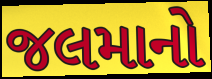
જલમાનો